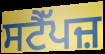
ਸਟੈੱਪਜ਼